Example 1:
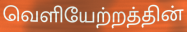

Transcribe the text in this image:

வெளியேற்றத்தின்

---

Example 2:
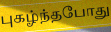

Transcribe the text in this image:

புகழ்ந்தபோது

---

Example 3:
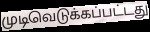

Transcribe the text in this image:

முடிவெடுக்கப்பட்டது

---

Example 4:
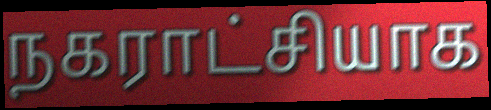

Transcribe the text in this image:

நகராட்சியாக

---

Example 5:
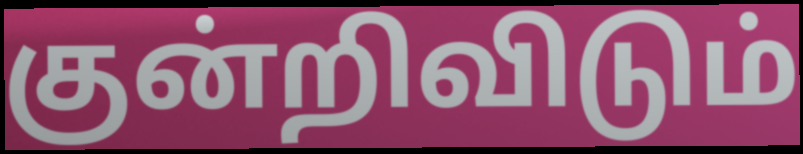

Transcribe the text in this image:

குன்றிவிடும்